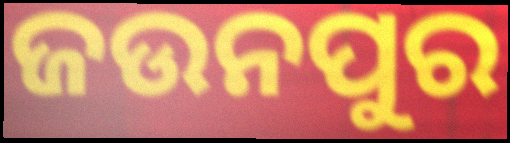
ଜଉନପୁର